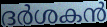
ദർശകൻ